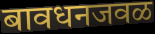
बावधनजवळ